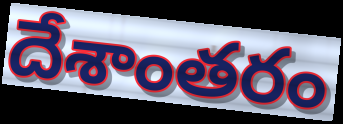
దేశాంతరం